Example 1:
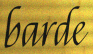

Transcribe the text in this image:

barde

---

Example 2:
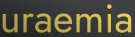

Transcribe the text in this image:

uraemia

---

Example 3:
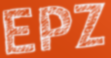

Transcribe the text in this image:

EPZ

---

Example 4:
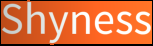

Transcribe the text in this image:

Shyness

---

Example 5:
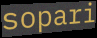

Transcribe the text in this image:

sopari